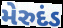
મેરુદંડ